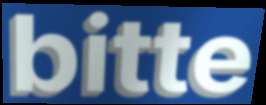
bitte